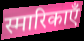
स्मारिकाएँ